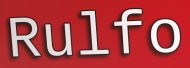
Rulfo